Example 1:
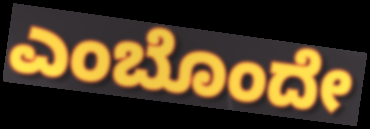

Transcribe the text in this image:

ಎಂಬೊಂದೇ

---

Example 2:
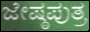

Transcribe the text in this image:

ಜೇಷ್ಠಪುತ್ರ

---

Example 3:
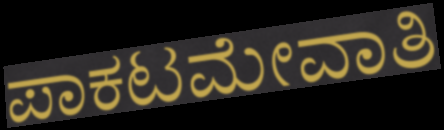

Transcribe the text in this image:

ಪಾಕಟಮೇವಾತಿ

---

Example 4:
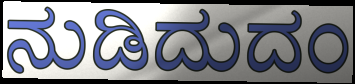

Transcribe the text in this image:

ನುಡಿದುದಂ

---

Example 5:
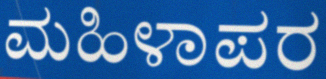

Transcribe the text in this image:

ಮಹಿಳಾಪರ